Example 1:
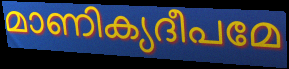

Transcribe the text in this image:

മാണിക്യദീപമേ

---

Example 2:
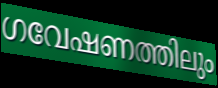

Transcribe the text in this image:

ഗവേഷണത്തിലും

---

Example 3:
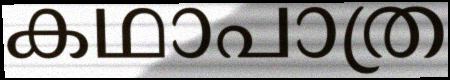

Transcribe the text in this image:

കഥാപാത്ര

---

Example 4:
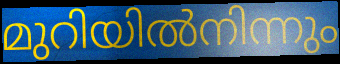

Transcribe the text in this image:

മുറിയിൽനിന്നും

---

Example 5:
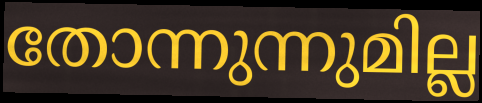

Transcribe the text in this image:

തോന്നുന്നുമില്ല